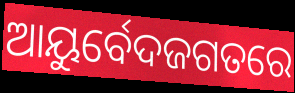
ଆୟୁର୍ବେଦଜଗତରେ